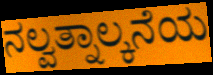
ನಲ್ವತ್ನಾಲ್ಕನೆಯ